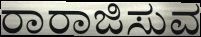
ರಾರಾಜಿಸುವ